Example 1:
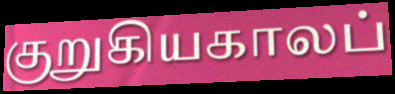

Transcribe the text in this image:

குறுகியகாலப்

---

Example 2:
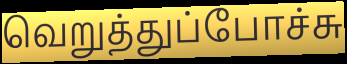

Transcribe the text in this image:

வெறுத்துப்போச்சு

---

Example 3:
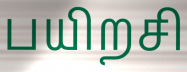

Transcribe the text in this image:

பயிறசி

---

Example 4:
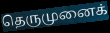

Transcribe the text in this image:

தெருமுனைக்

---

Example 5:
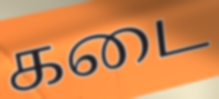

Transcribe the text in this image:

கடை